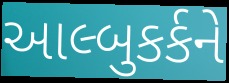
આલ્બુકર્કને